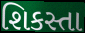
શિકસ્તા